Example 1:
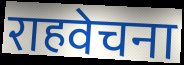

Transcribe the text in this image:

राहवेचना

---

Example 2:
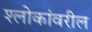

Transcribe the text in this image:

श्लोकांवरील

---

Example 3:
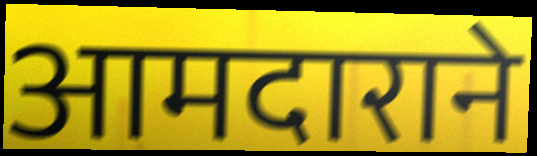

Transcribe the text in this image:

आमदाराने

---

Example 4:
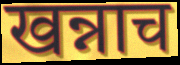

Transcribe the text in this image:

खन्नाच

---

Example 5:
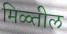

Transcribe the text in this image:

मिळ्तील